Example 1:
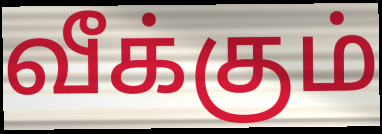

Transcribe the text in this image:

வீக்கும்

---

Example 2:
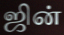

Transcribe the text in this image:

ஜின்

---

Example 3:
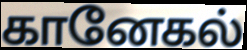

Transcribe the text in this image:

கானேகல்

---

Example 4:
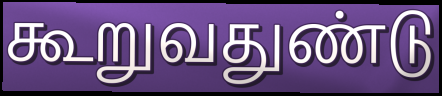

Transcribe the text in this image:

கூறுவதுண்டு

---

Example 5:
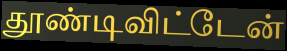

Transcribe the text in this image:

தூண்டிவிட்டேன்